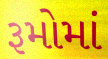
રૂમોમાં